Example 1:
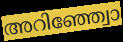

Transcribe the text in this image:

അറിഞ്ഞ്വോ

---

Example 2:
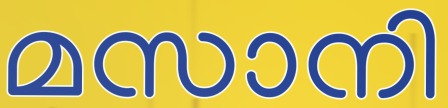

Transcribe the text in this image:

മസാനി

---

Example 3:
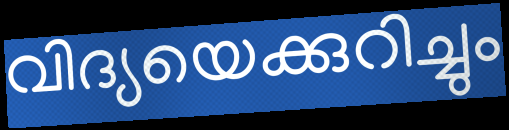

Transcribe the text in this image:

വിദ്യയെക്കുറിച്ചും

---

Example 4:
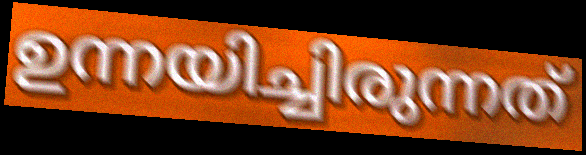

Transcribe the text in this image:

ഉന്നയിച്ചിരുന്നത്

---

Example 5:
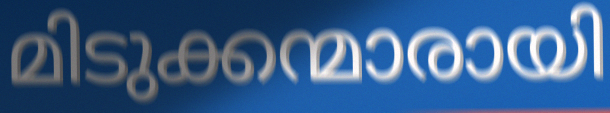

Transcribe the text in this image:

മിടുക്കന്മാരായി